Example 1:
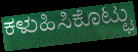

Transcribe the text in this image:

ಕಳುಹಿಸಿಕೊಟ್ಟು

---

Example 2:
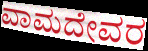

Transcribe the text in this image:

ವಾಮದೇವರ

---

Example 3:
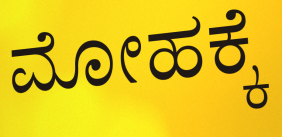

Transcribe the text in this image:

ಮೋಹಕ್ಕೆ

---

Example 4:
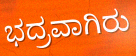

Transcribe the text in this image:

ಭದ್ರವಾಗಿರು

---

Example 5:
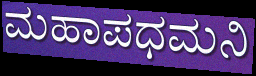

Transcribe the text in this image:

ಮಹಾಪಧಮನಿ